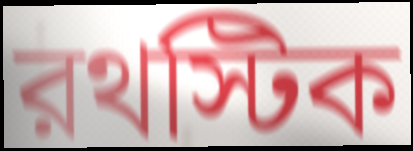
রথস্টিক